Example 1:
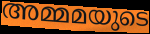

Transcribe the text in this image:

അമ്മമയുടെ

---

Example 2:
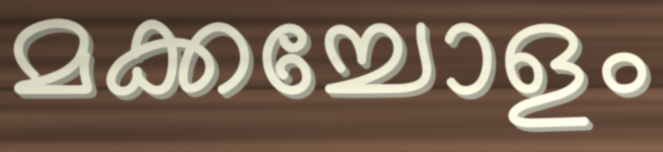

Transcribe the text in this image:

മക്കച്ചോളം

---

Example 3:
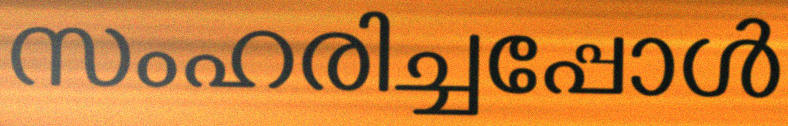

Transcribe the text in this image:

സംഹരിച്ചപ്പോൾ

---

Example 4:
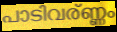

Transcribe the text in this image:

പാടിവര്ണ്ണം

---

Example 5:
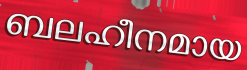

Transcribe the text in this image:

ബലഹീനമായ